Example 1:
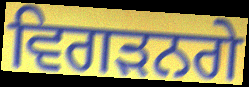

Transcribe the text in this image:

ਵਿਗੜਨਗੇ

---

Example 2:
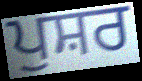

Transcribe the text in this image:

ਪੁਸ਼ਰ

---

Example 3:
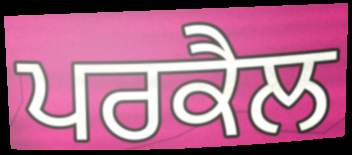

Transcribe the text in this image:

ਪਰਕੈਲ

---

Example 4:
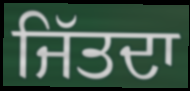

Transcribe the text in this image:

ਜਿੱਤਦਾ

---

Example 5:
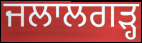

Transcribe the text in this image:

ਜਲਾਲਗੜ੍ਹ